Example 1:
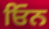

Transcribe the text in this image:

ਓਿਨ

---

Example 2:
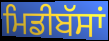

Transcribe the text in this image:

ਮਿਡੀਬੱਸਾਂ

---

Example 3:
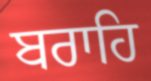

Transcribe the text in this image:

ਬਰਾਹਿ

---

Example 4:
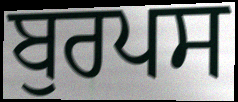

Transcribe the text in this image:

ਬੁਰਪਸ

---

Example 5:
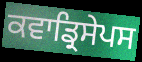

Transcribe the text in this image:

ਕਵਾਡ੍ਰਿਸੇਪਸ